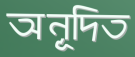
অনূদিত